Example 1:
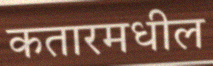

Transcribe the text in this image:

कतारमधील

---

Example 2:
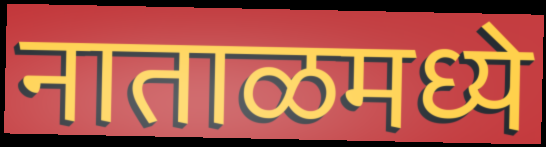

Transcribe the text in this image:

नाताळमध्ये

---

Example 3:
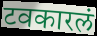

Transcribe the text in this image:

टवकारलं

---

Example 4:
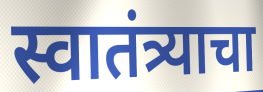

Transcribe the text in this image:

स्वातंत्र्याचा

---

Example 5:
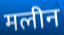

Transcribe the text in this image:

मलीन